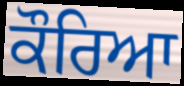
ਕੌਰਿਆ